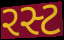
રસ્ટ